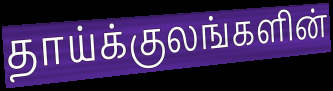
தாய்க்குலங்களின்